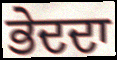
ਭੇਦਦਾ